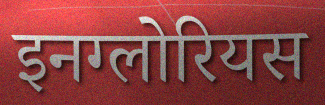
इनग्लोरियस